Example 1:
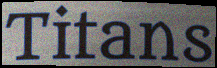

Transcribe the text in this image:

Titans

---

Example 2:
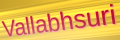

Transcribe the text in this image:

Vallabhsuri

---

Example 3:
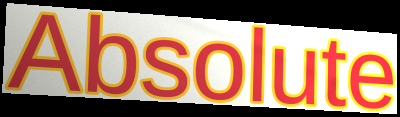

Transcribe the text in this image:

Absolute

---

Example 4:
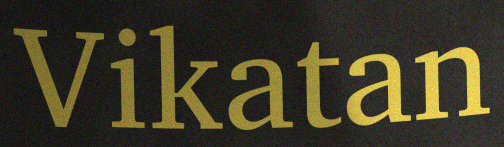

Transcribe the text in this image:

Vikatan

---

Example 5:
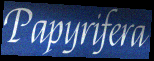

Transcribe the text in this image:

Papyrifera